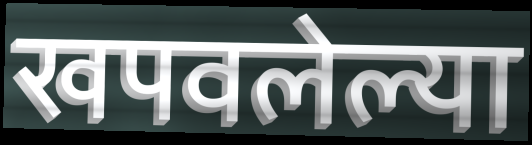
खपवलेल्या